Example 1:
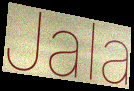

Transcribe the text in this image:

Jala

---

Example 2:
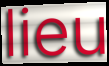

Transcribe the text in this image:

lieu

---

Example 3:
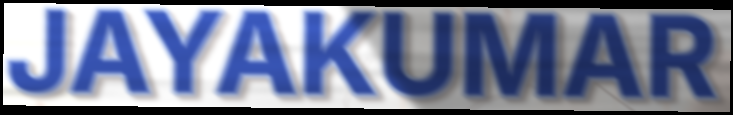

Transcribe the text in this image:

JAYAKUMAR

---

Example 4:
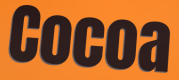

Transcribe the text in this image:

Cocoa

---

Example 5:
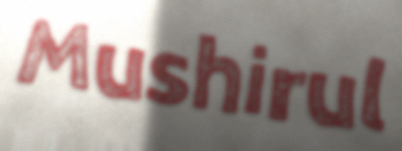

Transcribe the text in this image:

Mushirul